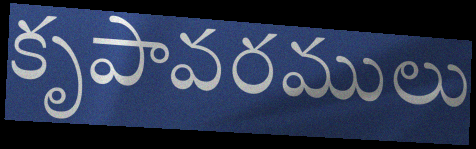
కృపావరములు